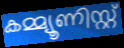
കമ്മ്യൂണിസ്റ്റ്